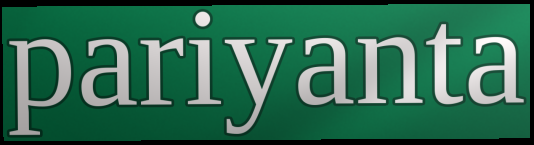
pariyanta